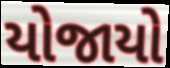
યોજાયો